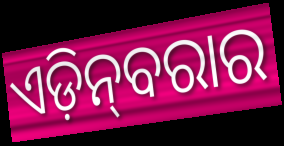
ଏଡ଼ିନ୍‍ବରାର